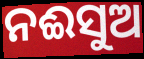
ନଈସୁଅ